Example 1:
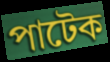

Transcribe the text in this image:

পাটেক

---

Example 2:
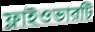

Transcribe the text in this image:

ফ্লাইওভারটি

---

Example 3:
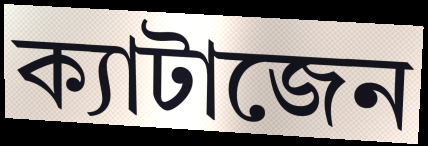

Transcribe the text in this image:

ক্যাটাজেন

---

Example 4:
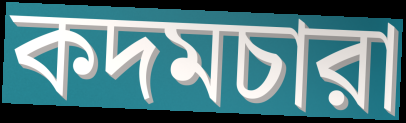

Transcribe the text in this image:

কদমচারা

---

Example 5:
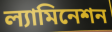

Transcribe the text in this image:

ল্যামিনেশন